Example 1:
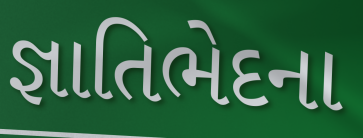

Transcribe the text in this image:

જ્ઞાતિભેદના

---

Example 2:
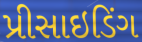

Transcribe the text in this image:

પ્રીસાઇડિંગ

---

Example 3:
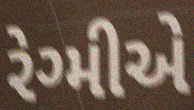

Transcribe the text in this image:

રેગ્મીએ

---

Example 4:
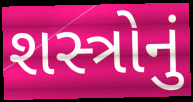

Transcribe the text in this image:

શસ્ત્રોનું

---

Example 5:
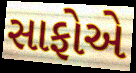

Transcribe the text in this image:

સાફોએ